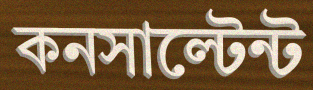
কনসাল্টেন্ট